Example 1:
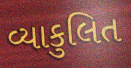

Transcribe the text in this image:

વ્યાકુલિત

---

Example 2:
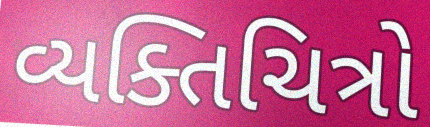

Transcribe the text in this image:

વ્યક્તિચિત્રો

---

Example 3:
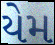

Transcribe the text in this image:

યેમ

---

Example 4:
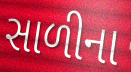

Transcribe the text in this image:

સાળીના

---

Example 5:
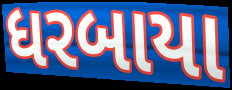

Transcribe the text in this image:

ધરબાયા